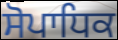
ਸੋਪਾਧਿਕ